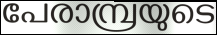
പേരാമ്പ്രയുടെ